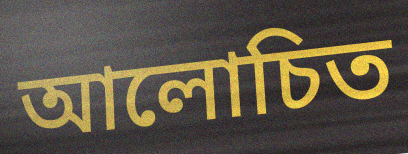
আলোচিত